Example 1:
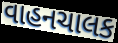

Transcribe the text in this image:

વાહનચાલક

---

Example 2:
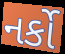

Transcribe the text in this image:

નર્કો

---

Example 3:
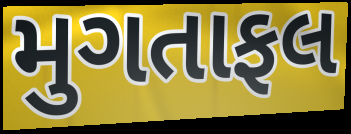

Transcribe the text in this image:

મુગતાફલ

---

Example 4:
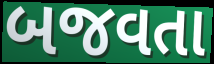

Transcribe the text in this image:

બજવતા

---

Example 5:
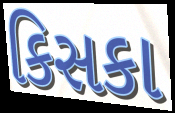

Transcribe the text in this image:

કિસકા